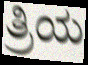
ತ್ರಿಯ